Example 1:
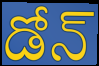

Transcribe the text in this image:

డోన్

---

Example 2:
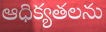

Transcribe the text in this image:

ఆధిక్యతలను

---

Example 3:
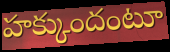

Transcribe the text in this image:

హక్కుందంటూ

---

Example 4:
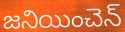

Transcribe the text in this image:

జనియించెన్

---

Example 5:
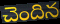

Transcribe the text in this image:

చెందిన